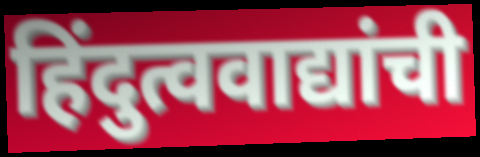
हिंदुत्ववाद्यांची